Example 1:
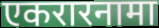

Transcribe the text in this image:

एकरारनामा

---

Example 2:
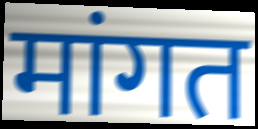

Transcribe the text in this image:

मांगत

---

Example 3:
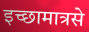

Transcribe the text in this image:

इच्छामात्रसे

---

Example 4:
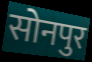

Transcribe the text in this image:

सोनपुर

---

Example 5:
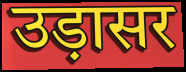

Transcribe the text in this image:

उड़ासर